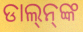
ଡାଲ୍‌ନ୍‌ଙ୍କ